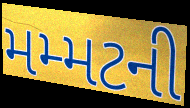
મમ્મટની